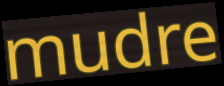
mudre